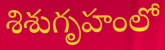
శిశుగృహంలో